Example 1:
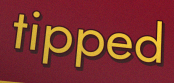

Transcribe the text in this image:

tipped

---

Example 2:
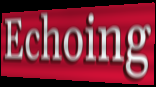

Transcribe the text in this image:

Echoing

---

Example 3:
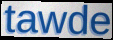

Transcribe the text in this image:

tawde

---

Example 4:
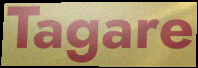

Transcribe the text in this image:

Tagare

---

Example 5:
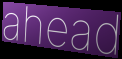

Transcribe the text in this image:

ahead